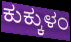
ಕುಕ್ಕುಳಂ